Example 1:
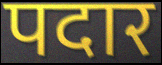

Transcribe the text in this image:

पदार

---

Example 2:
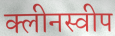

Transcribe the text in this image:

क्लीनस्वीप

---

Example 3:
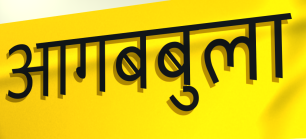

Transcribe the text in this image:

आगबबुला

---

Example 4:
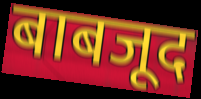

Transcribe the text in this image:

बाबजूद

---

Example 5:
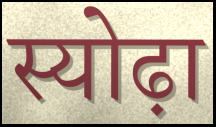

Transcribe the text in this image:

स्योढ़ा